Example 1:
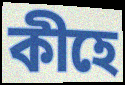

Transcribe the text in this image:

কীহে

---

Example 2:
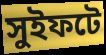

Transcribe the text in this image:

সুইফটে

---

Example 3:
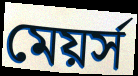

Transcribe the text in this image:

মেয়র্স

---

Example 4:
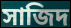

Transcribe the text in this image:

সাজিদ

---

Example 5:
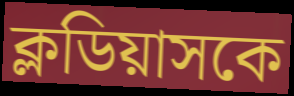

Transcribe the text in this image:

ক্লডিয়াসকে